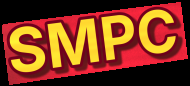
SMPC